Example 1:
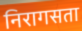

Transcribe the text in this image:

निरागसता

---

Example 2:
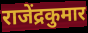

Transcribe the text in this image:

राजेंद्रकुमार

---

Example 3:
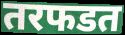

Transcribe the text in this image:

तरफडत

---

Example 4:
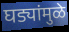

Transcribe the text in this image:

घड्यांमुळे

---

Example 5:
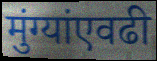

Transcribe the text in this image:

मुंग्यांएवढी